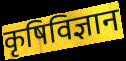
कृषिविज्ञान